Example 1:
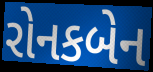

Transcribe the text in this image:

રોનકબેન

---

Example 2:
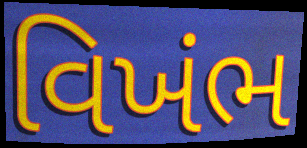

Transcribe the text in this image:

વિખંભ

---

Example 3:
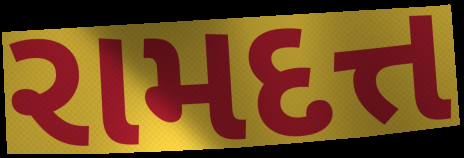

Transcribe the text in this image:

રામદત્ત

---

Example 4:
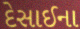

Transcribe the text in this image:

દેસાઈના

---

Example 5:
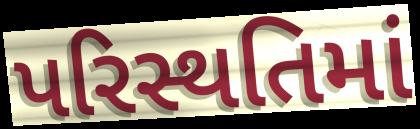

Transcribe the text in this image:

પરિસ્થતિમાં